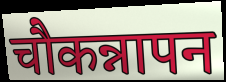
चौकन्नापन